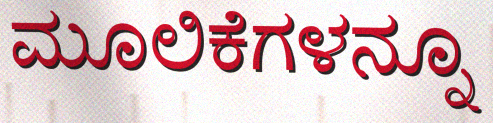
ಮೂಲಿಕೆಗಳನ್ನೂ